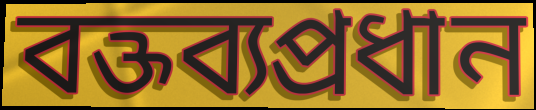
বক্তব্যপ্রধান